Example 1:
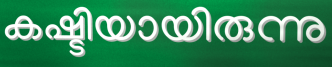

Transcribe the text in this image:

കഷ്ടിയായിരുന്നു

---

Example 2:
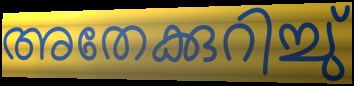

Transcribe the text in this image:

അതേക്കുറിച്ചു്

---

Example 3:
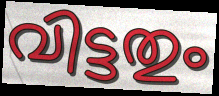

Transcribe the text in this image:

വിട്ടതും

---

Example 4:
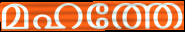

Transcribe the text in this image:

മഹത്തേ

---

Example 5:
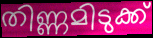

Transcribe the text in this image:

തിണ്ണമിടുക്ക്